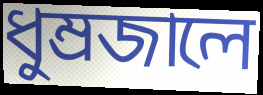
ধুম্রজালে